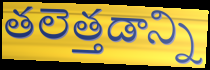
తలెత్తడాన్ని